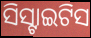
ସିସ୍ଟାଇଟିସ